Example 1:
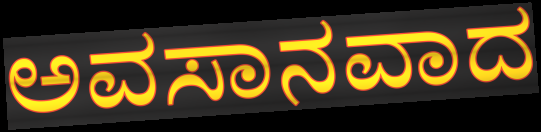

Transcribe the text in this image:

ಅವಸಾನವಾದ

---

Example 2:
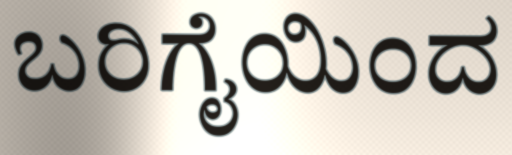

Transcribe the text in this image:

ಬರಿಗೈಯಿಂದ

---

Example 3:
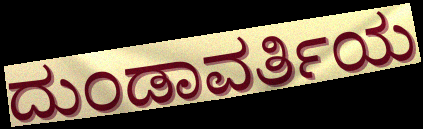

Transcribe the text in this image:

ದುಂಡಾವರ್ತಿಯ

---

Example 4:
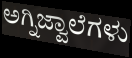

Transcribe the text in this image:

ಅಗ್ನಿಜ್ವಾಲೆಗಳು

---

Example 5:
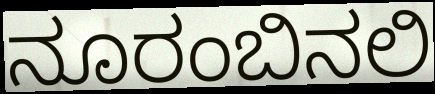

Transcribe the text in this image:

ನೂರಂಬಿನಲಿ